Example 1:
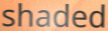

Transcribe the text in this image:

shaded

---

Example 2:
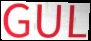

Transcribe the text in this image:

GUL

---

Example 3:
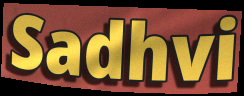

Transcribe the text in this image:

Sadhvi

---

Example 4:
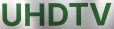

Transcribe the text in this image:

UHDTV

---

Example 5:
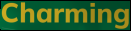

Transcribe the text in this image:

Charming